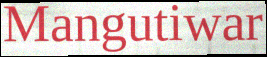
Mangutiwar